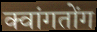
क्वांगतोंग